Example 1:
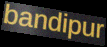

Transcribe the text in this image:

bandipur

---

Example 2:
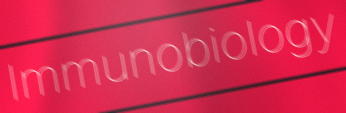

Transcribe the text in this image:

Immunobiology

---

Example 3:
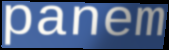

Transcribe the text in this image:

panem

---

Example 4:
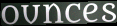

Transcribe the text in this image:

ounces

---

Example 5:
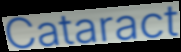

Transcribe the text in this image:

Cataract